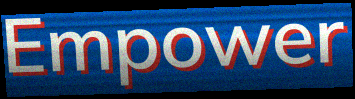
Empower